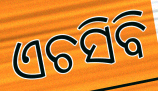
ଏଚସିବି